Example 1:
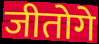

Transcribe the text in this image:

जीतोगे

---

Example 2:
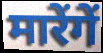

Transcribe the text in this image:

मारेंगें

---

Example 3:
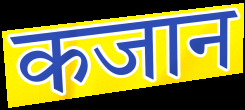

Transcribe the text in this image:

कजान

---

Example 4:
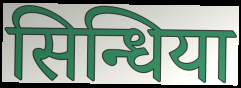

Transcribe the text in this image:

सिन्धिया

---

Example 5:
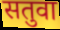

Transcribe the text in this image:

सतुवा